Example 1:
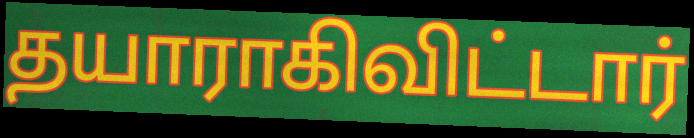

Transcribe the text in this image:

தயாராகிவிட்டார்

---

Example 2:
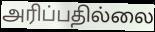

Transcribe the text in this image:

அரிப்பதில்லை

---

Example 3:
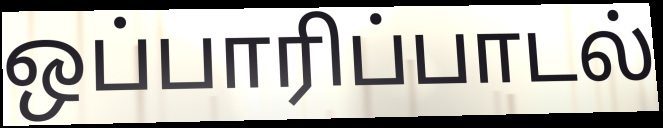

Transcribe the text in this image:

ஒப்பாரிப்பாடல்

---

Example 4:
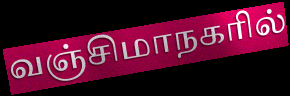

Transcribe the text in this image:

வஞ்சிமாநகரில்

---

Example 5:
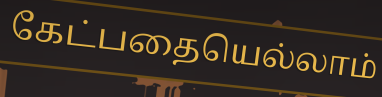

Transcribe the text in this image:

கேட்பதையெல்லாம்